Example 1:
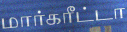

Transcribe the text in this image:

மார்கரீட்டா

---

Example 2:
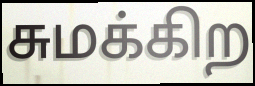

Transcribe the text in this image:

சுமக்கிற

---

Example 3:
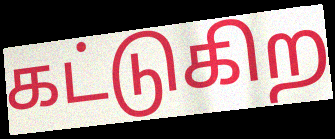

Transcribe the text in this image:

கட்டுகிற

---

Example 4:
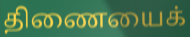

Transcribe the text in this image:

திணையைக்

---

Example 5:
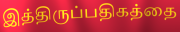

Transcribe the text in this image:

இத்திருப்பதிகத்தை